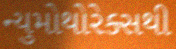
ન્યુમોથોરેક્સથી